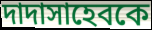
দাদাসাহেবকে